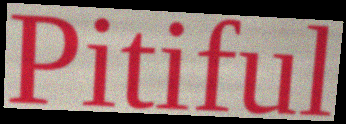
Pitiful